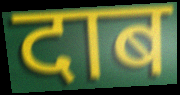
दाब